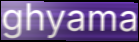
ghyama